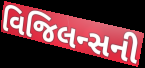
વિજિલન્સની